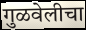
गुळवेलीचा